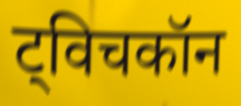
ट्विचकॉन